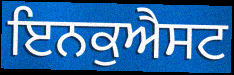
ਇਨਕੁਐਸਟ